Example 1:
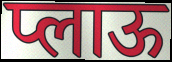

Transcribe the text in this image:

प्लाऊ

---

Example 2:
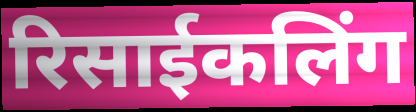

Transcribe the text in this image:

रिसाईकलिंग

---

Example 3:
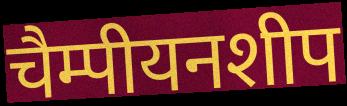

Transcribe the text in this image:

चैम्पीयनशीप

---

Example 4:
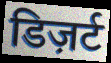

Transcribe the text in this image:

डिज़र्ट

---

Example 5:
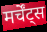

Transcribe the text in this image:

मर्चेंट्स